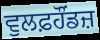
ਵੁਲਫ਼ਹੌਂਡਜ਼